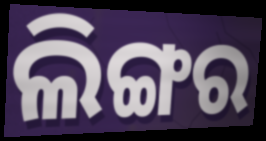
ଲିଙ୍ଗର